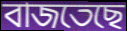
বাজতেছে